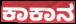
ಕಾಕಾನ